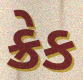
ક્રેક